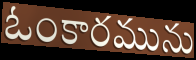
ఓంకారమును